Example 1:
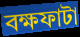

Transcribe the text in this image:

বক্ষফাটা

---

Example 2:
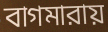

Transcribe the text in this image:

বাগমারায়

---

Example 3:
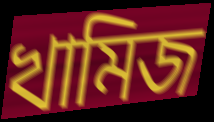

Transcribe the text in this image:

খামিজ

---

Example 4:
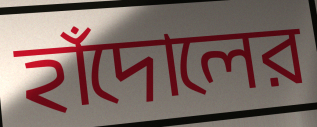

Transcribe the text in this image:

হাঁদোলের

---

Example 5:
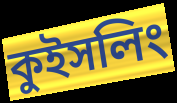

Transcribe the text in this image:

কুইসলিং